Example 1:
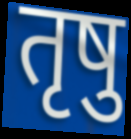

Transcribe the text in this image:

तृषु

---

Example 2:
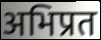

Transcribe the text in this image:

अभिप्रत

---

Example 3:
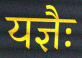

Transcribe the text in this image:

यज्ञैः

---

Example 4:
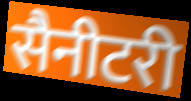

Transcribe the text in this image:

सैनीटरी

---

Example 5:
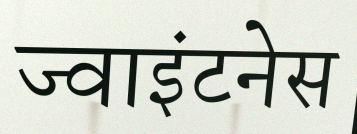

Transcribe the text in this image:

ज्वाइंटनेस